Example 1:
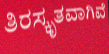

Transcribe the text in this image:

ತಿರಸ್ಕೃತವಾಗಿವೆ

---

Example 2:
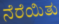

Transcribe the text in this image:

ನೆರೆಯಿತು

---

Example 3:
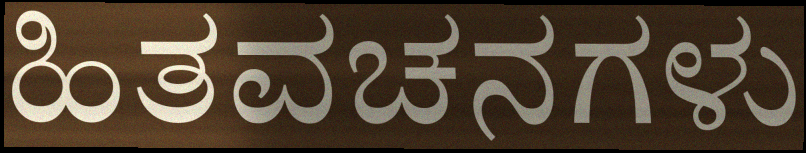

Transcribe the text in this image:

ಹಿತವಚನಗಳು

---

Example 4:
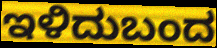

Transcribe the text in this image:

ಇಳಿದುಬಂದ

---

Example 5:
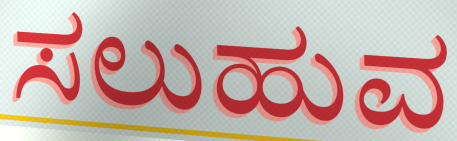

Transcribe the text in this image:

ಸಲುಹುವ